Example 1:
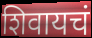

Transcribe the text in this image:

शिवायचं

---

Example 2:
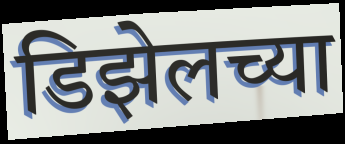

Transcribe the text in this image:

डिझेलच्या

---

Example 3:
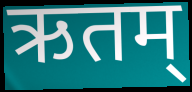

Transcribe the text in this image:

ऋतम्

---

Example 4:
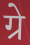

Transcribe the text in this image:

ग्रे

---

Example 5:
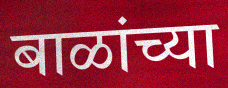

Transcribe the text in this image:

बाळांच्या